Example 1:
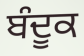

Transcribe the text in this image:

ਬੰਦੂਕ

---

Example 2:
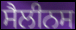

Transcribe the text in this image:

ਸੈਲੀਨਸ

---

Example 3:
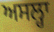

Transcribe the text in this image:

ਅਸਲ੍ਹਾ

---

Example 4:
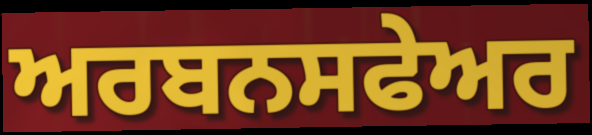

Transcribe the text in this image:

ਅਰਬਨਸਫੇਅਰ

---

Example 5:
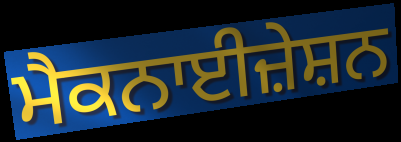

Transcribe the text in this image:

ਮੈਕਨਾਈਜ਼ੇਸ਼ਨ